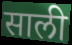
साली